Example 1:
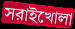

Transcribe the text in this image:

সরাইখোলা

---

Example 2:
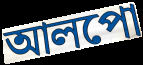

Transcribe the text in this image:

আলপো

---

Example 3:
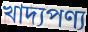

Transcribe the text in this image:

খাদ্যপণ্য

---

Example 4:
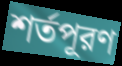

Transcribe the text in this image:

শর্তপূরণ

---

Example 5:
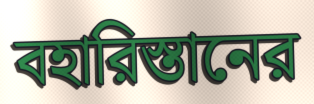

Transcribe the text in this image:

বহারিস্তানের